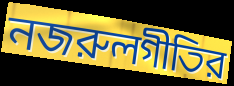
নজরুলগীতির